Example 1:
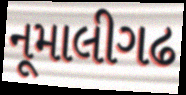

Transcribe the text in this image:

નૂમાલીગઢ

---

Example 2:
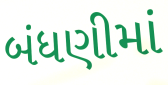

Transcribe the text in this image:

બંધણીમાં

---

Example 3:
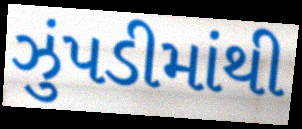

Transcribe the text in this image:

ઝુંપડીમાંથી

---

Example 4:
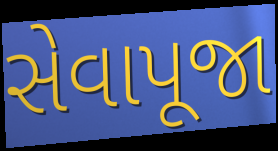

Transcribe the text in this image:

સેવાપૂજા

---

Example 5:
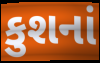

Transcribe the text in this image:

કુશનાં